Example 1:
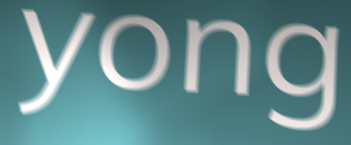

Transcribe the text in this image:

yong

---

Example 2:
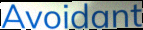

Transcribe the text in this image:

Avoidant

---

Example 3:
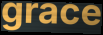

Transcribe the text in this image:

grace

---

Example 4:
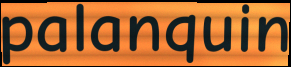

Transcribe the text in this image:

palanquin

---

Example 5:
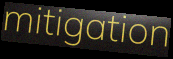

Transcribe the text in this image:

mitigation